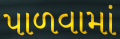
પાળવામાં